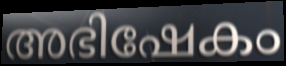
അഭിഷേകം